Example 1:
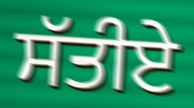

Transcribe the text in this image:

ਸੱਤੀਏ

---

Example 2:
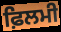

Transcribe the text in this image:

ਫ਼ਿਲਮੀ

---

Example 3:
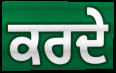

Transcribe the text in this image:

ਕਰਦੇ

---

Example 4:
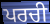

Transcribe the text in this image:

ਪਰਚੀ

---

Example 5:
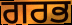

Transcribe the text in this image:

ਗਰਭ